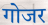
गोजर